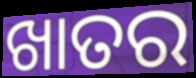
ଖାତର